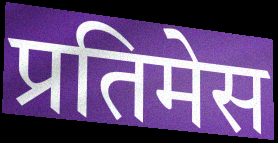
प्रतिमेस